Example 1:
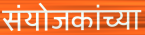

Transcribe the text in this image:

संयोजकांच्या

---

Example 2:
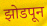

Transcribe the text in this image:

झोडपून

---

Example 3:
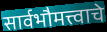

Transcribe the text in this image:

सार्वभौमत्त्वाचे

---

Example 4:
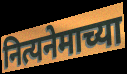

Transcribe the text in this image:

नित्यनेमाच्या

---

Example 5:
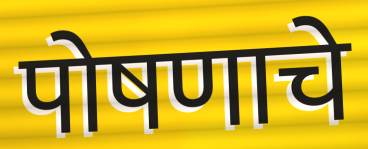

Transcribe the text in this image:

पोषणाचे